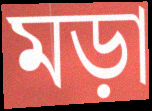
মড়া